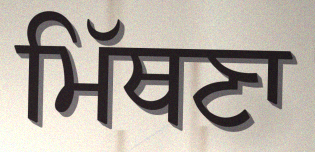
ਮਿੱਥਣਾ